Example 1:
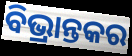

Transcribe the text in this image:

ବିଭ୍ରାନ୍ତକର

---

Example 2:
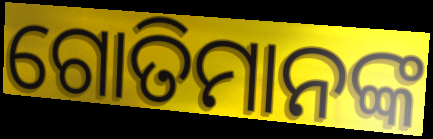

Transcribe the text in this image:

ଗୋତିମାନଙ୍କ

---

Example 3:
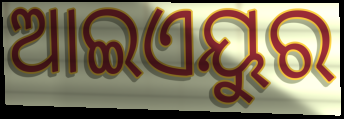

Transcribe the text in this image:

ଆଇଏୟୁର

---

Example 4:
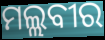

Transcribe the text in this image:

ମଲ୍ଲବୀର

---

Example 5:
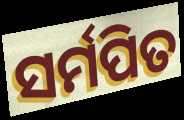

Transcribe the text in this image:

ସର୍ମପିତ